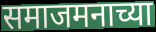
समाजमनाच्या